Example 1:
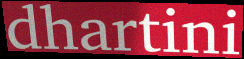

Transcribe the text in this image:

dhartini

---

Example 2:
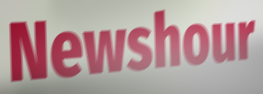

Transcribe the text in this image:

Newshour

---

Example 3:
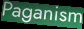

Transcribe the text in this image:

Paganism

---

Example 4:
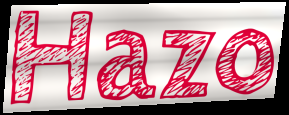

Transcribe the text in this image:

Hazo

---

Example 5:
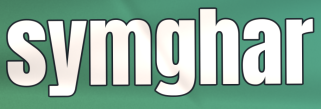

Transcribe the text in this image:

symghar